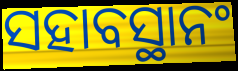
ସହାବସ୍ଥାନଂ